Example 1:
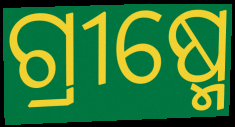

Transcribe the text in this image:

ଗ୍ରୀଷ୍ମେ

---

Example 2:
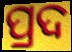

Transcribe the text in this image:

ପ୍ରଦ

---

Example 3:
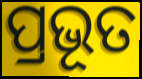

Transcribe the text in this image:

ପ୍ରଭୂତ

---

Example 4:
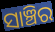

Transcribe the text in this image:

ସାଞ୍ଚିର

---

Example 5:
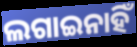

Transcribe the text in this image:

ଲଗାଇନାହିଁ